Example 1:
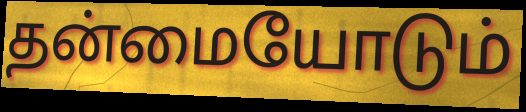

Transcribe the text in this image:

தன்மையோடும்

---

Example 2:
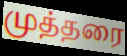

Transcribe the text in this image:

முத்தரை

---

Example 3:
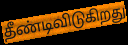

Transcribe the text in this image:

தீண்டிவிடுகிறது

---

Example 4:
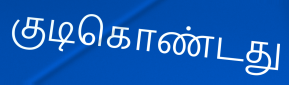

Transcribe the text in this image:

குடிகொண்டது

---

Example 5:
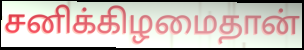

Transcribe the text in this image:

சனிக்கிழமைதான்